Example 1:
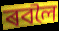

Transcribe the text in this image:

ৰবলৈ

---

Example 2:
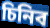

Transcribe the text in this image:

চিনিব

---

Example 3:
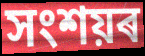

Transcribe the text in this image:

সংশয়ৰ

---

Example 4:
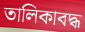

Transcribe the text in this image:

তালিকাবদ্ধ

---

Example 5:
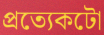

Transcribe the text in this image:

প্ৰত্যেকটো